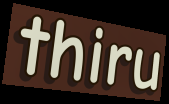
thiru